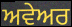
ਅਵੇਅਰ